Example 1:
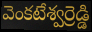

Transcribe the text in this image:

వెంకటేశ్వర్రెడ్డి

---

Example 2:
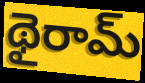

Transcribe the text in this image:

థైరామ్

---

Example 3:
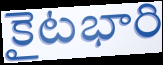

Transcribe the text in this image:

కైటభారి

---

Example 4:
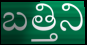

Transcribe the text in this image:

బత్తిని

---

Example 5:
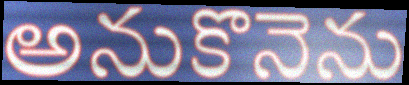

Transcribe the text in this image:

అనుకొనెను